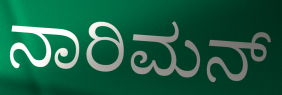
ನಾರಿಮನ್